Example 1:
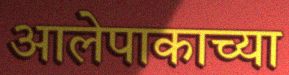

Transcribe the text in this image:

आलेपाकाच्या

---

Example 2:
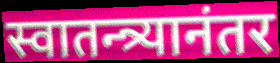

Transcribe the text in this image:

स्वातन्त्र्यानंतर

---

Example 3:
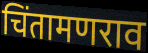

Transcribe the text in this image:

चिंतामणराव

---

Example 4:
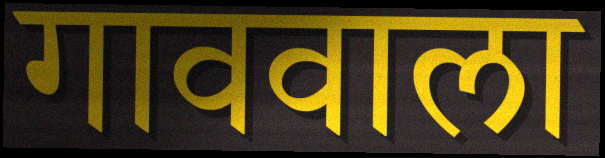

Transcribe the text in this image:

गाववाला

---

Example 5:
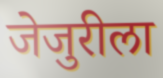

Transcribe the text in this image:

जेजुरीला